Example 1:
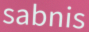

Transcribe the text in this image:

sabnis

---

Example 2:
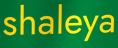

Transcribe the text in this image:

shaleya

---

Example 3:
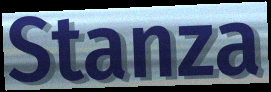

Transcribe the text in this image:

Stanza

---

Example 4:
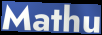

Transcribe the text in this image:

Mathu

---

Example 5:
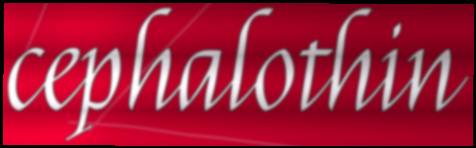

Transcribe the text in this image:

cephalothin